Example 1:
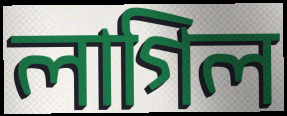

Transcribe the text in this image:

লাগিল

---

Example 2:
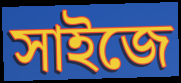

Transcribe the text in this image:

সাইজে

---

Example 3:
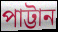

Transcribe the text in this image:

পাট্টান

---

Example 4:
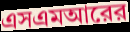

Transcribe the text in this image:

এসএমআরের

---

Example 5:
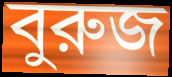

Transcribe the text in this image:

বুরুজ